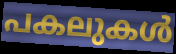
പകലുകൾ